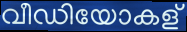
വീഡിയോകള്